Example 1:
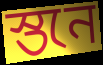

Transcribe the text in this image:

স্তনে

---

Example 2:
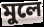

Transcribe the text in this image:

মুলে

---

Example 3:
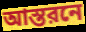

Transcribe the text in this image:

আস্তরনে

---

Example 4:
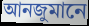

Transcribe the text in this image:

আনজুমানে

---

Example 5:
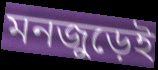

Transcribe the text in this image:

মনজুড়েই